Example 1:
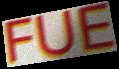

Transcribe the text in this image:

FUE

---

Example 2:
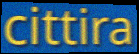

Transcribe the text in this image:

cittira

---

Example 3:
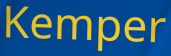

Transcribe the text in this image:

Kemper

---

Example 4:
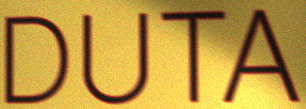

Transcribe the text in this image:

DUTA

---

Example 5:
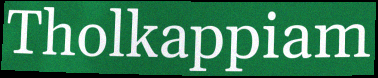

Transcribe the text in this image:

Tholkappiam